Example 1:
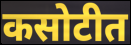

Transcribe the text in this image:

कसोटीत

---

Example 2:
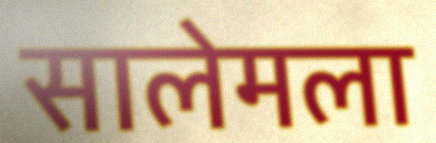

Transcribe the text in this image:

सालेमला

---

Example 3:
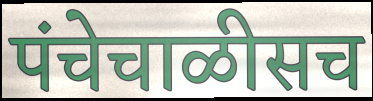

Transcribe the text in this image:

पंचेचाळीसच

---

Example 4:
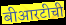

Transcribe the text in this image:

बीआरटीची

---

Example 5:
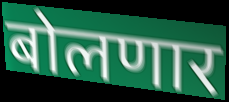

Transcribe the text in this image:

बोलणार